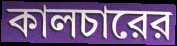
কালচারের